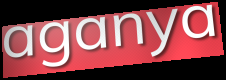
aganya